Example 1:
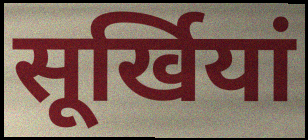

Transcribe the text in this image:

सूर्खियां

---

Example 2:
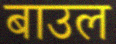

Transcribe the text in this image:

बाउल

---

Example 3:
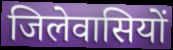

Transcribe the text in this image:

जिलेवासियों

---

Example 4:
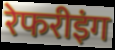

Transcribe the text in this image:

रेफरीइंग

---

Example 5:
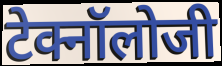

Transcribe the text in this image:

टेक्नॉलोजी